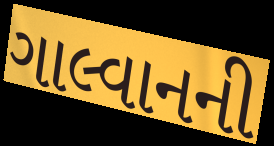
ગાલ્વાનની